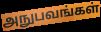
அநுபவங்கள்